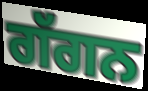
ਗੱਗਨ